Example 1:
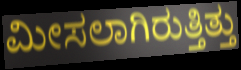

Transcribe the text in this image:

ಮೀಸಲಾಗಿರುತ್ತಿತ್ತು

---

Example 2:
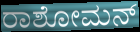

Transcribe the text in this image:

ರಾಶೋಮನ್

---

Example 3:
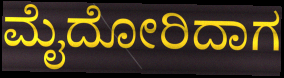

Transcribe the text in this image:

ಮೈದೋರಿದಾಗ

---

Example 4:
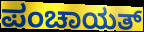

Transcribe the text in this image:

ಪಂಚಾಯತ್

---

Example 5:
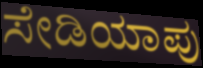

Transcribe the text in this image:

ಸೇಡಿಯಾಪು